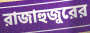
রাজাহুজুরের